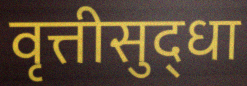
वृत्तीसुद्धा